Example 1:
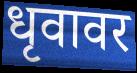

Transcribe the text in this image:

धृवावर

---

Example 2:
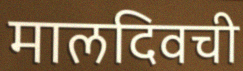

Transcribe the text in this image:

मालदिवची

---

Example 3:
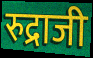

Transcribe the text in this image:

रुद्राजी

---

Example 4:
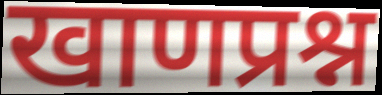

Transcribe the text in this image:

खाणप्रश्न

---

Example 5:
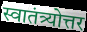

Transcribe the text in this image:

स्वातंत्र्योत्तर